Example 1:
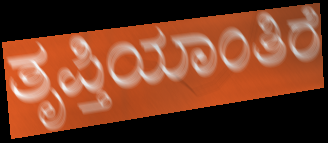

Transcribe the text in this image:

ತೃಪ್ತಿಯಾಂತಿರೆ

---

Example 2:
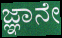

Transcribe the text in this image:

ಜ್ಞಾನೇ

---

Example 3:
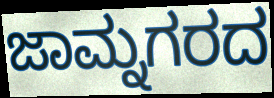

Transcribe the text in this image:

ಜಾಮ್ನಗರದ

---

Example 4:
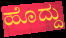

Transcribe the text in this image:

ಹೊದ್ದು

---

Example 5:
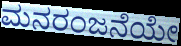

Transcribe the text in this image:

ಮನರಂಜನೆಯೇ